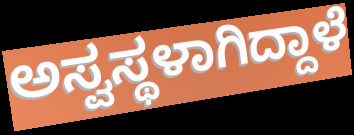
ಅಸ್ವಸ್ಥಳಾಗಿದ್ದಾಳೆ